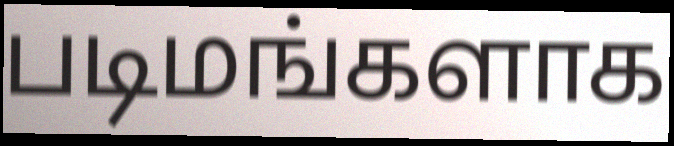
படிமங்களாக